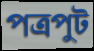
পত্রপুট